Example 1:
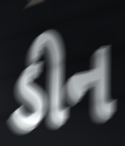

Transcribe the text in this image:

ડીન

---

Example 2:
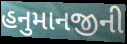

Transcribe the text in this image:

હનુમાનજીની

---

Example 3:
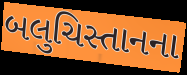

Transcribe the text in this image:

બલુચિસ્તાનના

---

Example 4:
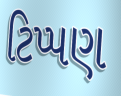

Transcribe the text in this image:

ટિપ્પણ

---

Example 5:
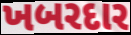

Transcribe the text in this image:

ખબરદાર